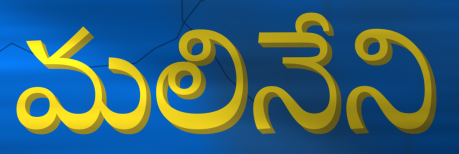
మలినేని